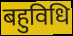
बहुविधि